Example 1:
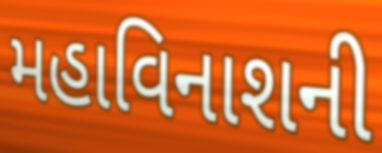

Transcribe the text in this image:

મહાવિનાશની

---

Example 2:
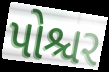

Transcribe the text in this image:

પોશ્ચર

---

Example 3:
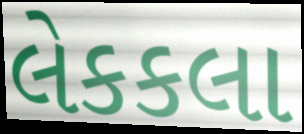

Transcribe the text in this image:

લેકકલા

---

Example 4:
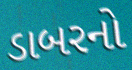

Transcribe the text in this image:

ડાબરનો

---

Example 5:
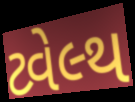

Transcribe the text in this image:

ટ્વેલ્થ